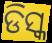
ଡିସ୍କ